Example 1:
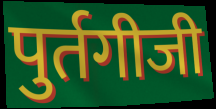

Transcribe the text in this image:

पुर्तगीजी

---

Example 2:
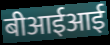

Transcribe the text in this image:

बीआईआई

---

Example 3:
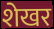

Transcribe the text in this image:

शेखर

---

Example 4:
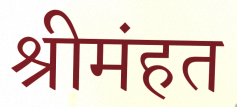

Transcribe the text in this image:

श्रीमंहत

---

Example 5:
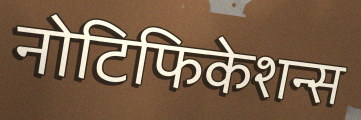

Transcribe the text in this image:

नोटिफिकेशन्स